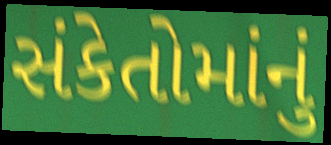
સંકેતોમાંનું